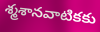
శ్మశానవాటికకు